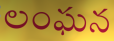
లంఘన